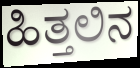
ಹಿತ್ತಲಿನ